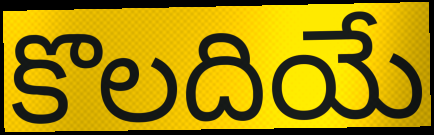
కొలదియే